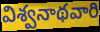
విశ్వనాథవారి